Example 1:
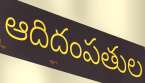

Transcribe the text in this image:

ఆదిదంపతుల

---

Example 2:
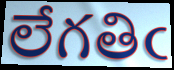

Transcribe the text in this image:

లేగతిఁ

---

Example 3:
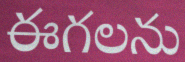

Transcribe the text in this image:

ఈగలను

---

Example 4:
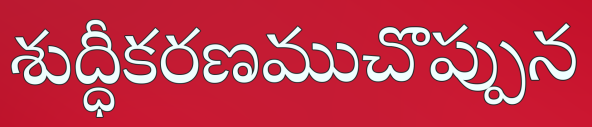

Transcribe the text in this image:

శుద్ధీకరణముచొప్పున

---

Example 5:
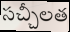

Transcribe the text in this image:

సచ్చీలత